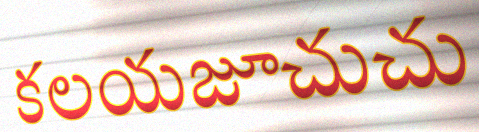
కలయజూచుచు